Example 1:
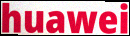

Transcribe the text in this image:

huawei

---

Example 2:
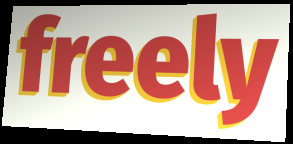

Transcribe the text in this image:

freely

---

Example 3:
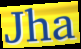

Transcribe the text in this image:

Jha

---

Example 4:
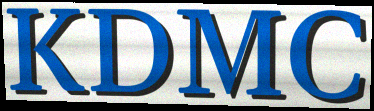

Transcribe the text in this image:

KDMC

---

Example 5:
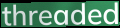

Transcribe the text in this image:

threaded